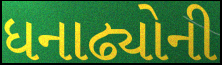
ધનાઢ્યોની